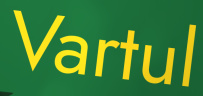
Vartul